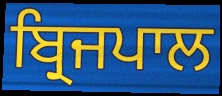
ਬ੍ਰਿਜਪਾਲ